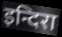
इन्दिरा